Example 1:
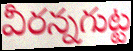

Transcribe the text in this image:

వీరన్నగుట్ట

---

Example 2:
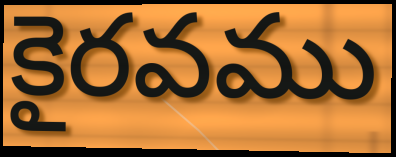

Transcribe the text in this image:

కైరవము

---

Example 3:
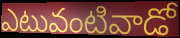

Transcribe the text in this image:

ఎటువంటివాడో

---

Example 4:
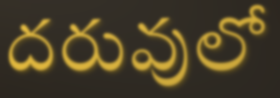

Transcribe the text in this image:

దరువులో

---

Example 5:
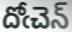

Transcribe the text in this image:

దోఁచెన్